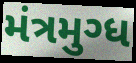
મંત્રમુગ્ધ